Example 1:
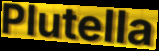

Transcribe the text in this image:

Plutella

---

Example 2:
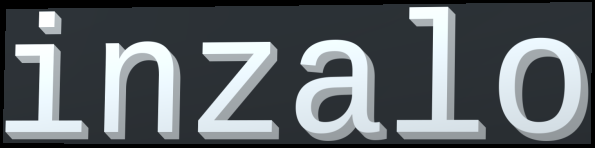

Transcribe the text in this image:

inzalo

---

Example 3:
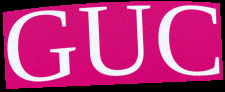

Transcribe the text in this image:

GUC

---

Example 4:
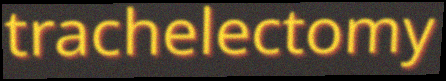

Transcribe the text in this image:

trachelectomy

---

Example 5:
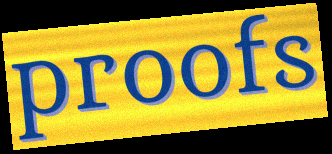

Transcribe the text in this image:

proofs